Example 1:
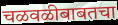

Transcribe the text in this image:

चळवळीबाबतचा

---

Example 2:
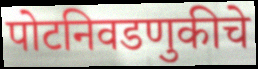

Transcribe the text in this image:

पोटनिवडणुकीचे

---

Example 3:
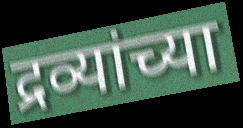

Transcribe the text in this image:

द्रव्यांच्या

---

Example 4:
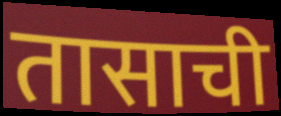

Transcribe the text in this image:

तासाची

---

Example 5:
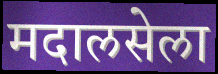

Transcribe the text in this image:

मदालसेला